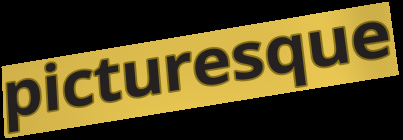
picturesque